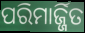
ପରିମାର୍ଜ୍ଜିତ